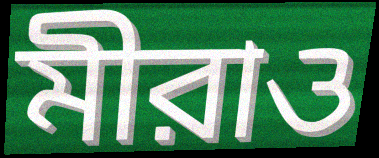
মীরাও